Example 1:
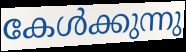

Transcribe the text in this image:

കേൾക്കുന്നു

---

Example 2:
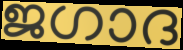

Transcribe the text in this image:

ജഗാദ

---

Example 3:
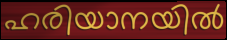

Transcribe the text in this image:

ഹരിയാനയിൽ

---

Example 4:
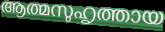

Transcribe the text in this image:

ആത്മസുഹൃത്തായ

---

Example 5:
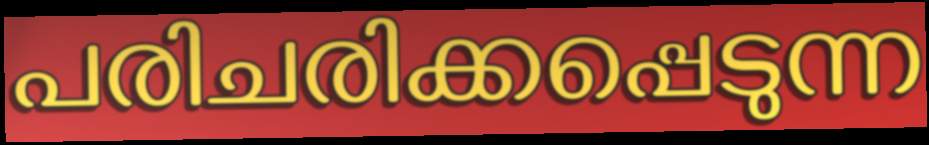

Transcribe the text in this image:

പരിചരിക്കപ്പെടുന്ന